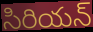
సిరియన్